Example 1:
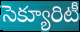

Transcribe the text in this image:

సెక్యూరిటీ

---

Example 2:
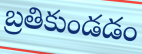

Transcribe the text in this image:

బ్రతికుండడం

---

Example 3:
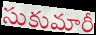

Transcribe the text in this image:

సుకుమారీ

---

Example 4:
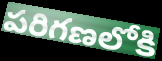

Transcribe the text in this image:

పరిగణలోకి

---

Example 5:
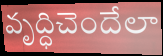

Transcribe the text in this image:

వృద్ధిచెందేలా